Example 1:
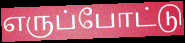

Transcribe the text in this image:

எருப்போட்டு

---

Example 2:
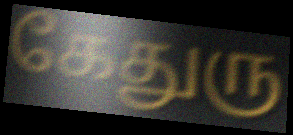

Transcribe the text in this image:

கேதுரு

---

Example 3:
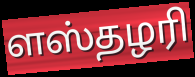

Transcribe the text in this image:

ளஸ்தழரி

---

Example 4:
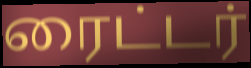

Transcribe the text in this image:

ரைட்டர்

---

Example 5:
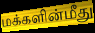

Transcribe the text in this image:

மக்களின்மீது